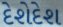
દેશેદેશ